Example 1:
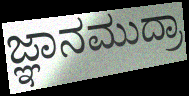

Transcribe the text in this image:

ಜ್ಞಾನಮುದ್ರಾ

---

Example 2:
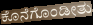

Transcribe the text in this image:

ಕೊನೆಗೊಂಡೀತು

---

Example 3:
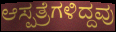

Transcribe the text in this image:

ಆಸ್ಪತ್ರೆಗಳಿದ್ದವು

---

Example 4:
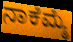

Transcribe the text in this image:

ನಾಕೆಮ್ಮೆ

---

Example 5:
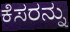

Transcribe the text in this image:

ಕೆಸರನ್ನು